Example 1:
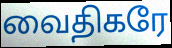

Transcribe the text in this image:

வைதிகரே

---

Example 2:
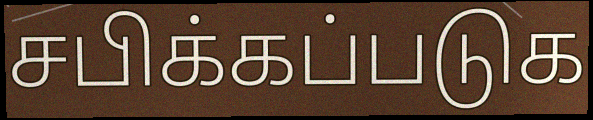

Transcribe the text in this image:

சபிக்கப்படுக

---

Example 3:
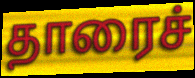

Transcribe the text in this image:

தாரைச்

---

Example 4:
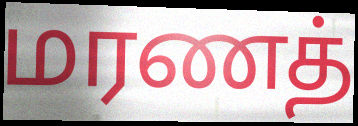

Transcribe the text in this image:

மரணத்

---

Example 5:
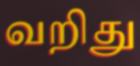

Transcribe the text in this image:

வறிது